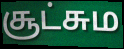
சூட்சும